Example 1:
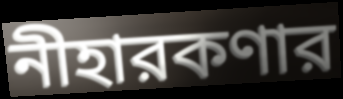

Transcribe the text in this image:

নীহারকণার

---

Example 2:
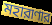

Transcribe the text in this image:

মহারাণার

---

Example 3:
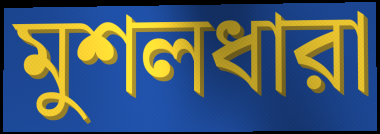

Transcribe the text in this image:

মুশলধারা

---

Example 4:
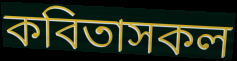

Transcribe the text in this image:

কবিতাসকল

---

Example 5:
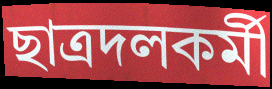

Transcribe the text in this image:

ছাত্রদলকর্মী